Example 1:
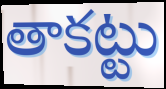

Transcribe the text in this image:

తాకట్టు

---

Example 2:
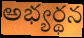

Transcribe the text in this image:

అభ్యర్థన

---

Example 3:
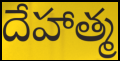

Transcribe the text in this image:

దేహాత్మ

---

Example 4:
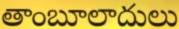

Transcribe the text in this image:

తాంబూలాదులు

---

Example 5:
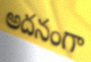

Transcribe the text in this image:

అదనంగా